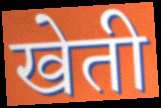
खेती